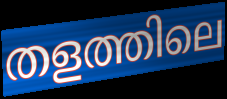
തളത്തിലെ